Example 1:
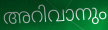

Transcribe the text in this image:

അറിവാനും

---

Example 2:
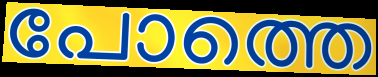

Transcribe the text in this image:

പോത്തെ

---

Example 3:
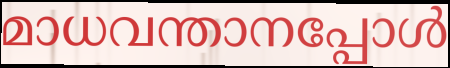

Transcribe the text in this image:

മാധവന്താനപ്പോൾ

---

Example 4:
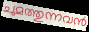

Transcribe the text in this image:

ചുമത്തുന്നവൻ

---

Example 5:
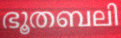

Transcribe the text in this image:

ഭൂതബലി